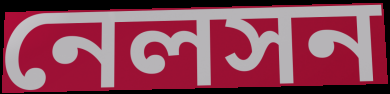
নেলসন